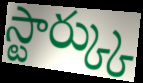
స్టార్క్కు